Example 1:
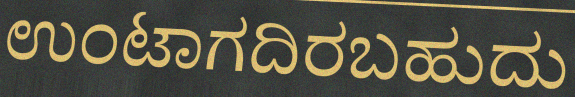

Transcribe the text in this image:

ಉಂಟಾಗದಿರಬಹುದು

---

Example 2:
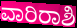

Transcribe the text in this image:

ವಾರಿರಾಶಿ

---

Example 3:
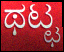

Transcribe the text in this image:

ಥಟ್ಟ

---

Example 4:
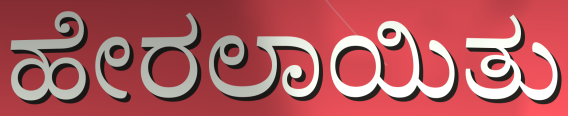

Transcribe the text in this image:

ಹೇರಲಾಯಿತು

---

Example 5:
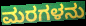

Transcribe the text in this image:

ಮರಗಳನು